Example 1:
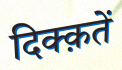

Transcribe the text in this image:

दिक्क़तें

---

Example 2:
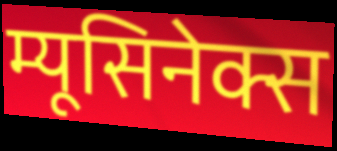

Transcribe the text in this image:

म्यूसिनेक्स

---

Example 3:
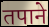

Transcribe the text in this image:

तपाने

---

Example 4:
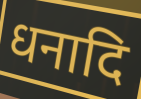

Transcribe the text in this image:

धनादि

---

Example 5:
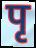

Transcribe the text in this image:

पृ